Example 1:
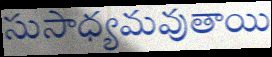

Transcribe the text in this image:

సుసాధ్యమవుతాయి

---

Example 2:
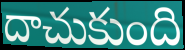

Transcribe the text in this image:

దాచుకుంది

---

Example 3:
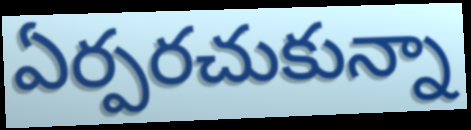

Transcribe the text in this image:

ఏర్పరచుకున్నా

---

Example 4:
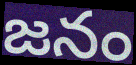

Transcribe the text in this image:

జనం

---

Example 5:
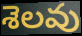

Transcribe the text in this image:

శెలవు